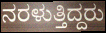
ನರಳುತ್ತಿದ್ದರು